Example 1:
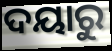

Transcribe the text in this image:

ଦୟାରୁ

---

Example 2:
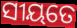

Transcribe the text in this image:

ସୀୟତେ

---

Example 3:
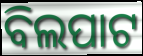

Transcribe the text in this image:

ବିଲପାଟ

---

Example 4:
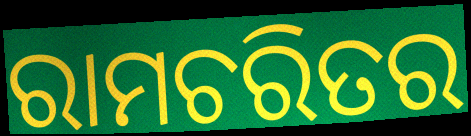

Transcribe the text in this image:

ରାମଚରିତର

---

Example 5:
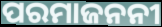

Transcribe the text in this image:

ପରମାଜନନୀ